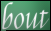
bout